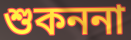
শুকননা